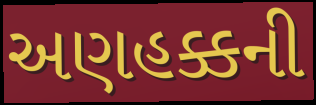
અણહક્કની